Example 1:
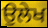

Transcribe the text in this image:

ਉਲੇਖ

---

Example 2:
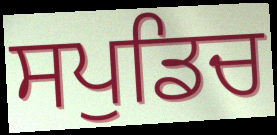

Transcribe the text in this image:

ਸਪੁਡਿਚ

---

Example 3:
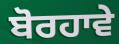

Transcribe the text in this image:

ਬੋਰਹਾਵੇ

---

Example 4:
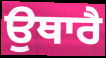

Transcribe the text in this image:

ਉਥਾਰੈ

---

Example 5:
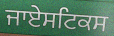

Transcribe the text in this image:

ਜਾਏਸਟਿਕਸ